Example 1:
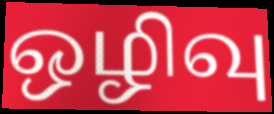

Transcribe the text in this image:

ஒழிவு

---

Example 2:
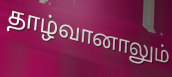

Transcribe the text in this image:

தாழ்வானாலும்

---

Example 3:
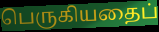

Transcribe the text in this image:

பெருகியதைப்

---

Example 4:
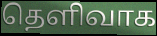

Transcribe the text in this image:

தெளிவாக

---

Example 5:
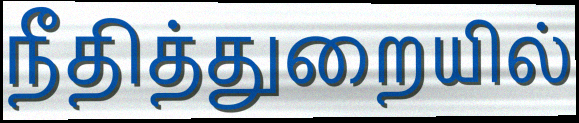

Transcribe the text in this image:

நீதித்துறையில்